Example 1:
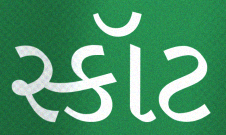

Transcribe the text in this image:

સ્કૉટ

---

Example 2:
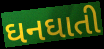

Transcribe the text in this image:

ઘનઘાતી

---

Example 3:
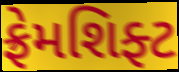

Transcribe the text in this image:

ફ્રેમશિફ્ટ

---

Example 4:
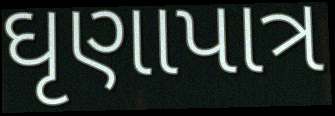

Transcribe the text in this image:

ઘૃણાપાત્ર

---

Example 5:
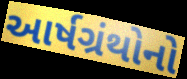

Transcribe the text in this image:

આર્ષગ્રંથોનો